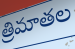
త్రిమాతల